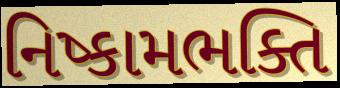
નિષ્કામભક્તિ